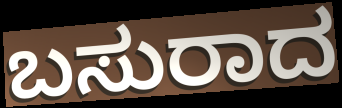
ಬಸುರಾದ